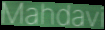
Mahdavi